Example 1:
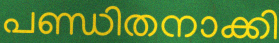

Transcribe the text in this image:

പണ്ഡിതനാക്കി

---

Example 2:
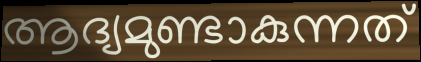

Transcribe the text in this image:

ആദ്യമുണ്ടാകുന്നത്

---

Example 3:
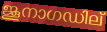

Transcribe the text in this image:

ജൂനാഗഡില്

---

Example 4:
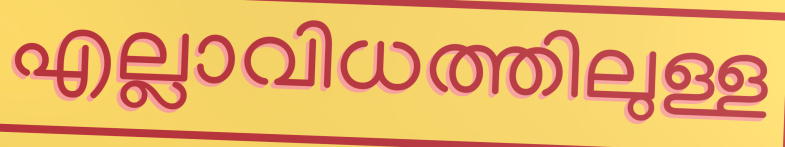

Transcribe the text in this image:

എല്ലാവിധത്തിലുള്ള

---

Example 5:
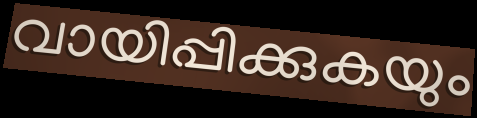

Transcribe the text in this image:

വായിപ്പിക്കുകയും